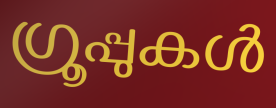
ഗ്രൂപ്പുകൾ